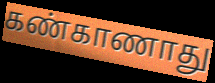
கண்காணாது